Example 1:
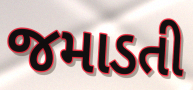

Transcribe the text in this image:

જમાડતી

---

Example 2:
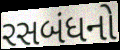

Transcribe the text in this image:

રસબંધનો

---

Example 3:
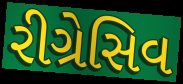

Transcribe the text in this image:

રીગ્રેસિવ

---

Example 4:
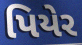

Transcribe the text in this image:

પિયેર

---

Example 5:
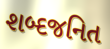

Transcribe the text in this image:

શબ્દજનિત